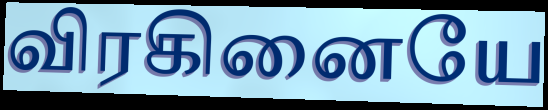
விரகினையே